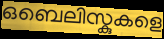
ഒബെലിസ്കുകളെ